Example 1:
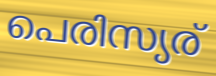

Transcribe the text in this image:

പെരിസ്യര്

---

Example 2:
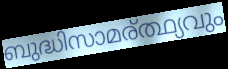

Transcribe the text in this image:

ബുദ്ധിസാമര്ത്ഥ്യവും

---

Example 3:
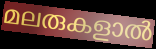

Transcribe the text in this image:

മലരുകളാൽ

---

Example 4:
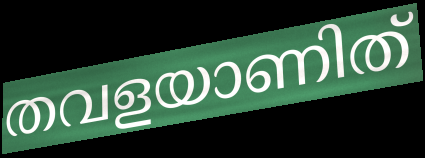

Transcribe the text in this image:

തവളയാണിത്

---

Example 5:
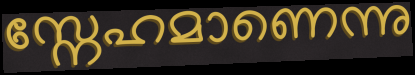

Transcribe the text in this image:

സ്നേഹമാണെന്നു